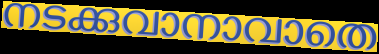
നടക്കുവാനാവാതെ